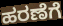
ಹರಣೆಗೆ